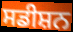
ਸਡੀਸ਼ਨ